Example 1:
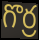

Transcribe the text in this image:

గొర్ర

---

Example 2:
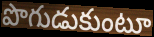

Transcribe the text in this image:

పొగుడుకుంటూ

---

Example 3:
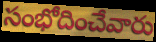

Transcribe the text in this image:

సంభోదించేవారు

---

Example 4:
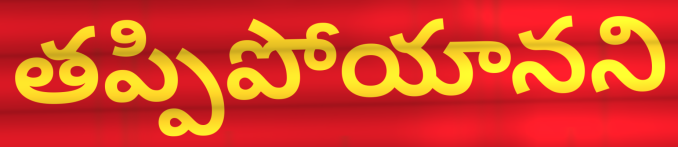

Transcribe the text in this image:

తప్పిపోయానని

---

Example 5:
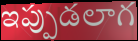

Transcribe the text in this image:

ఇప్పుడలాగ